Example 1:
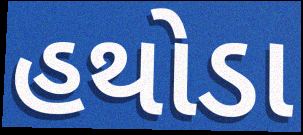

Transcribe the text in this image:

હથોડા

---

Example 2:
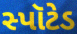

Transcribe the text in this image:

સ્પૉટેડ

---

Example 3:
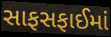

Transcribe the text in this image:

સાફસફાઈમાં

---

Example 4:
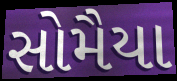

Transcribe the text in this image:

સોમૈયા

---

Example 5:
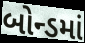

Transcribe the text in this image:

બોન્ડમાં